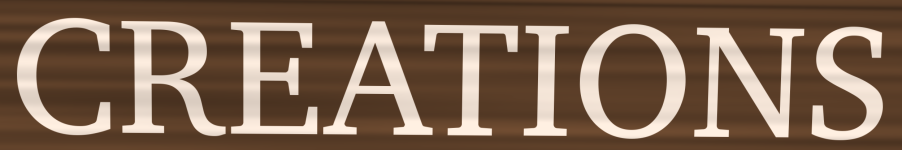
CREATIONS